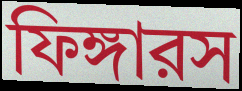
ফিঙ্গারস